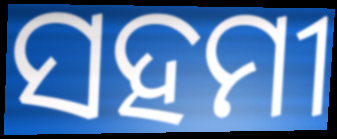
ସହମୀ